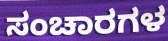
ಸಂಚಾರಗಳ